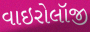
વાઇરોલૉજી